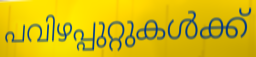
പവിഴപ്പുറ്റുകൾക്ക്